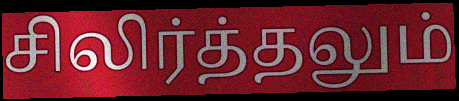
சிலிர்த்தலும்